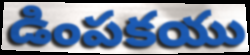
డింపకయు